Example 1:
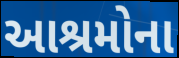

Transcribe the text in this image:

આશ્રમોના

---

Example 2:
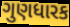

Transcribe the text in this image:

ગુણધારક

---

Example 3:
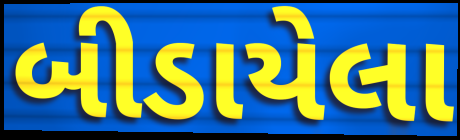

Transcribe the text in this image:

બીડાયેલા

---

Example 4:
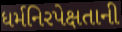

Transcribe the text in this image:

ધર્મનિરપેક્ષતાની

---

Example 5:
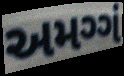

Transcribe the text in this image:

અમગ્ગં